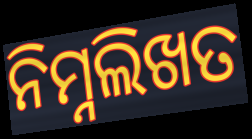
ନିମ୍ନଲିଖତ